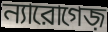
ন্যারোগেজ়